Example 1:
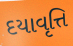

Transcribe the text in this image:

દયાવૃત્તિ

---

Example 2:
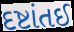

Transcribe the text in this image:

દષ્ટાંતઈ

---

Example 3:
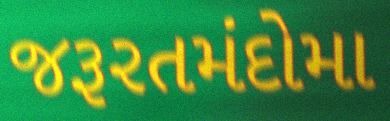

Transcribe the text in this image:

જરૂરતમંદોમા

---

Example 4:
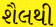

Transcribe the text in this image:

શૈલથી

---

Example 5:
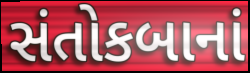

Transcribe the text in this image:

સંતોકબાનાં